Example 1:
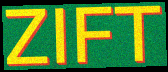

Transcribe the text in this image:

ZIFT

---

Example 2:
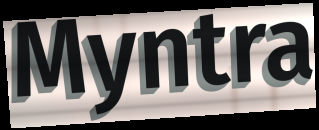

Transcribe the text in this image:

Myntra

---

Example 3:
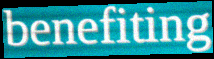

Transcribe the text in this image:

benefiting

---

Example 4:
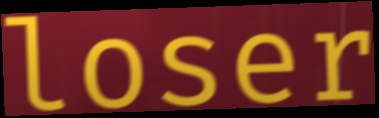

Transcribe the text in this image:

loser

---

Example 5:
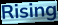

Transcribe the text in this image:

Rising